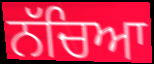
ਨੱਚਿਆ